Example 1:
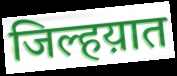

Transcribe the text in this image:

जिल्हय़ात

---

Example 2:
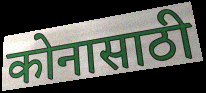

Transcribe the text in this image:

कोनासाठी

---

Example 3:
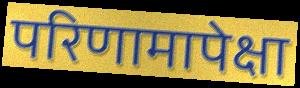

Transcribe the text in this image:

परिणामापेक्षा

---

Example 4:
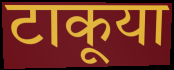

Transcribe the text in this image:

टाकूया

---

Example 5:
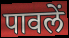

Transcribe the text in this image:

पावलें